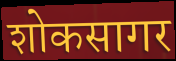
शोकसागर